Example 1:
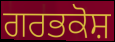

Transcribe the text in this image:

ਗਰਭਕੋਸ਼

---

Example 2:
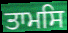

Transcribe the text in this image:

ਤਾਮਸਿ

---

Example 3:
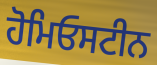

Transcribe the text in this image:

ਹੋਮਿਓਸਟੀਨ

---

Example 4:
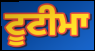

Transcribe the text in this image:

ਟੂਟੀਮਾ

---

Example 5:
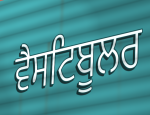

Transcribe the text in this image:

ਵੈਸਟਿਬੂਲਰ